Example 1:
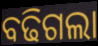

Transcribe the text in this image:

ବଢିଗଲା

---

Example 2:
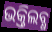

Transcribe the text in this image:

ଭକ୍ତିଲବ୍ଧ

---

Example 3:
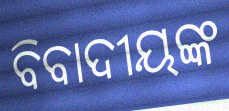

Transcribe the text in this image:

ବିବାଦୀୟଙ୍କ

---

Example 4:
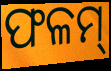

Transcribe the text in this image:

ଫଳମ୍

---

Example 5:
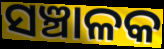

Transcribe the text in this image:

ସଞ୍ଚାଳକ